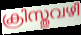
ക്രിസ്തുവഴി